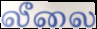
லீலை